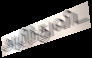
அழிந்துவிட